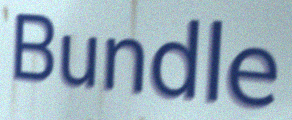
Bundle